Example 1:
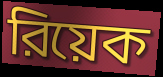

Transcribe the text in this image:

রিয়েক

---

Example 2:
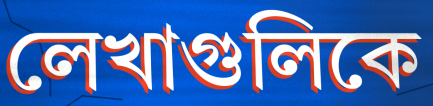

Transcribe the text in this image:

লেখাগুলিকে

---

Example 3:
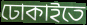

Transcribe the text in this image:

ঢোকাইতে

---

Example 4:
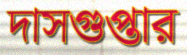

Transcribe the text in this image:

দাসগুপ্তার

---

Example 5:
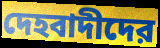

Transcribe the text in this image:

দেহবাদীদের